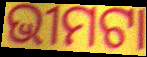
ଭୀମଟା